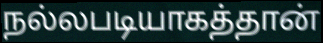
நல்லபடியாகத்தான்